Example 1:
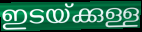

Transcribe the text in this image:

ഇടയ്‌ക്കുള്ള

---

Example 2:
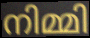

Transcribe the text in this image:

നിമ്മി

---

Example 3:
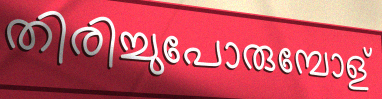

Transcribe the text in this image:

തിരിച്ചുപോരുമ്പോള്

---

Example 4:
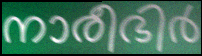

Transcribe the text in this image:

നാരീഭിർ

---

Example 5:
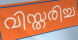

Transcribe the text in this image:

വിസ്തരിച്ച